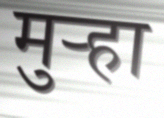
मुऱ्हा